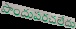
పొందుపరచలేదు